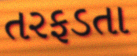
તરફડતા